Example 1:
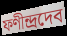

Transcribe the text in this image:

ফণীন্দ্রদেব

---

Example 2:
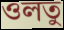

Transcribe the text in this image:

ওলতু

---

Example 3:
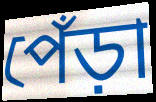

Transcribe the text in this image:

পেঁড়া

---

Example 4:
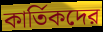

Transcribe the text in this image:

কার্তিকদের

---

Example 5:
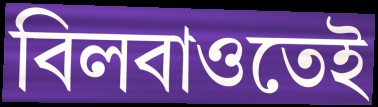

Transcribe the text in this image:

বিলবাওতেই